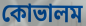
কোভালম